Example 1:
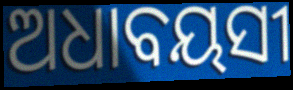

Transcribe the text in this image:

ଅଧାବୟସୀ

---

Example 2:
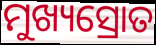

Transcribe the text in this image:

ମୁଖ୍ୟସ୍ରୋତ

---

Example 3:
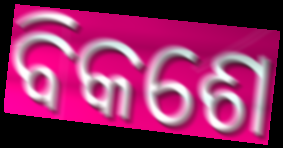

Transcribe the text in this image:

ବିକଶେ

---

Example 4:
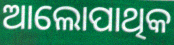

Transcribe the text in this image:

ଆଲୋପାଥିକ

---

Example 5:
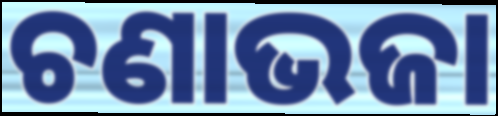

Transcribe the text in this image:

ଚଣାଭଜା